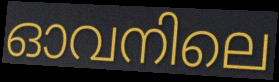
ഓവനിലെ